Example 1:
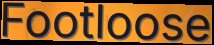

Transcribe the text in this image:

Footloose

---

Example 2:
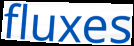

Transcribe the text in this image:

fluxes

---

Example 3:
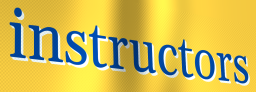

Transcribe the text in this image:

instructors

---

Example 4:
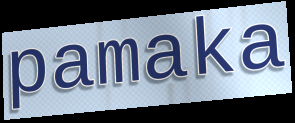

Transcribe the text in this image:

pamaka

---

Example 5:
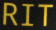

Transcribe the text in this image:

RIT